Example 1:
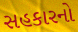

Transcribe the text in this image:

સહકારનો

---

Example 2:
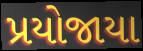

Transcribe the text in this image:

પ્રયોજાયા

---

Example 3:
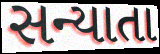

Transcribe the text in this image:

સન્યાતા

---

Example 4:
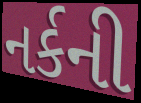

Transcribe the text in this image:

નર્કની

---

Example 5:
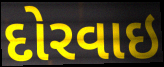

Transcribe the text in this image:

દોરવાઇ